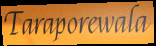
Taraporewala